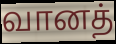
வானத்